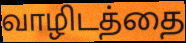
வாழிடத்தை